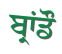
ਬ੍ਰਾਂਡੌ